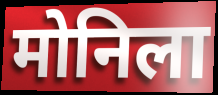
मोनिला